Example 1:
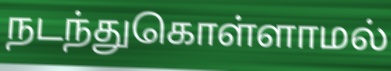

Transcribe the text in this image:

நடந்துகொள்ளாமல்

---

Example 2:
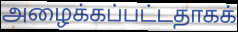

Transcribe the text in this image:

அழைக்கப்பட்டதாகக்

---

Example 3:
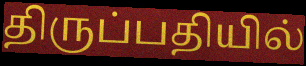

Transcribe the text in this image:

திருப்பதியில்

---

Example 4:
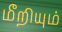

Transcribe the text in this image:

மீறியும்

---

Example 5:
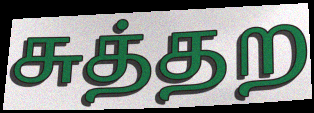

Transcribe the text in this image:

சுத்தற